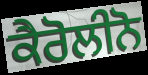
ਕੈਰੋਲੀਨੋ